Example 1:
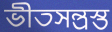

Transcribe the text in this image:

ভীতসন্ত্রস্ত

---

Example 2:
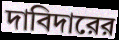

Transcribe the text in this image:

দাবিদারের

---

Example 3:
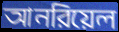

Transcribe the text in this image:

আনরিয়েল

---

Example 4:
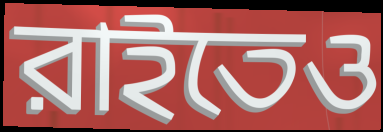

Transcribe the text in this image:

রাইতেও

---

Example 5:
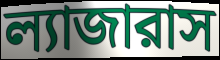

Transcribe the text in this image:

ল্যাজারাস